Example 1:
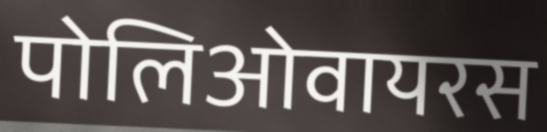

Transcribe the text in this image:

पोलिओवायरस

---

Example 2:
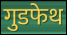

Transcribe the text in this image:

गुडफेथ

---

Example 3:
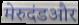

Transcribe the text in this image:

मेरुदंडऔर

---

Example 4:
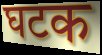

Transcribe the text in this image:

घटक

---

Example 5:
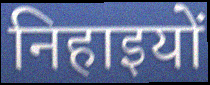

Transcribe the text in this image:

निहाइयों